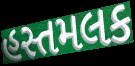
હસ્તમલક